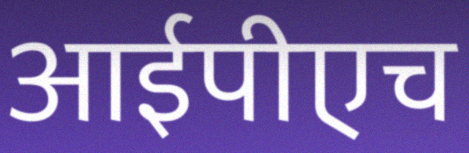
आईपीएच